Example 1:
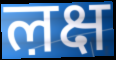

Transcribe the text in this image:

ल़क्ष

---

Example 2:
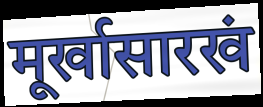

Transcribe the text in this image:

मूर्खासारखं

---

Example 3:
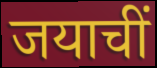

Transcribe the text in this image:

जयाचीं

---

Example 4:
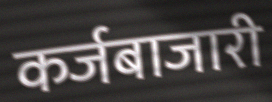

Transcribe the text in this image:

कर्जबाजारी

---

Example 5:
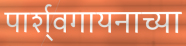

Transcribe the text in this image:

पार्श्वगायनाच्या